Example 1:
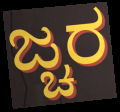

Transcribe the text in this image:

ಜ್ಚರ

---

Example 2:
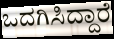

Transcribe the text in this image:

ಒದಗಿಸಿದ್ದಾರೆ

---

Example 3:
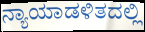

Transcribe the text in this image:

ನ್ಯಾಯಾಡಳಿತದಲ್ಲಿ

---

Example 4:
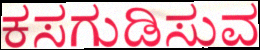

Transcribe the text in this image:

ಕಸಗುಡಿಸುವ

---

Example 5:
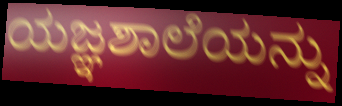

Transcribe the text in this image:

ಯಜ್ಞಶಾಲೆಯನ್ನು